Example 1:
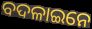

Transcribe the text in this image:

ବଦଳାଇନେ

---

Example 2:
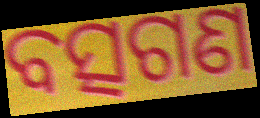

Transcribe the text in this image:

ବତ୍ସଗଣ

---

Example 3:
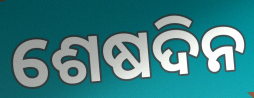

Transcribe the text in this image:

ଶେଷଦିନ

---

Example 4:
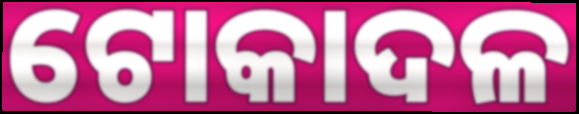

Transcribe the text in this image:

ଟୋକାଦଳ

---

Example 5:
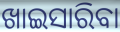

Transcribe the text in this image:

ଖାଇସାରିବା